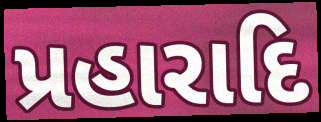
પ્રહારાદિ